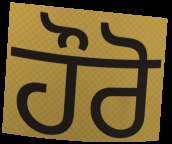
ਹੌਰੋ